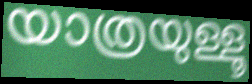
യാത്രയുള്ളൂ